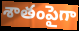
శాతంపైగా